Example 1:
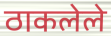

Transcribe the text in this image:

ठाकलेले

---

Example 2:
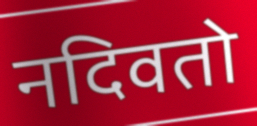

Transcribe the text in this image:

नदिवतो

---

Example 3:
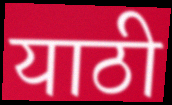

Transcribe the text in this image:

याठी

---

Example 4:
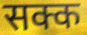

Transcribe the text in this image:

सक्क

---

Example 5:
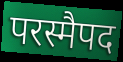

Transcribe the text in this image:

परस्मैपद